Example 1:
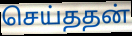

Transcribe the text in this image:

செய்ததன்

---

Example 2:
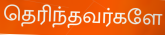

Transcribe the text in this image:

தெரிந்தவர்களே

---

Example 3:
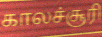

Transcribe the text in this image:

காலச்சூரி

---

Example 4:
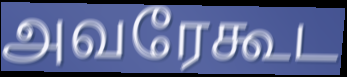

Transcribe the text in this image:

அவரேகூட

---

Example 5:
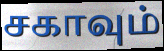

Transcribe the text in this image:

சகாவும்